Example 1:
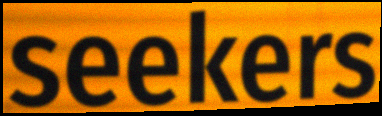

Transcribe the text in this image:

seekers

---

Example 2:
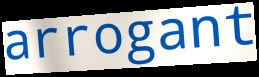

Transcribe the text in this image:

arrogant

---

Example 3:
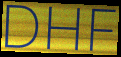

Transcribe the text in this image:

DHF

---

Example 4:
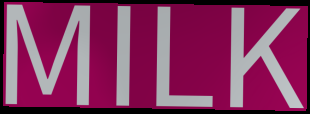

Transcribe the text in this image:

MILK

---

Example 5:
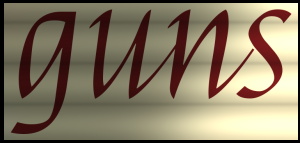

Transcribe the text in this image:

guns